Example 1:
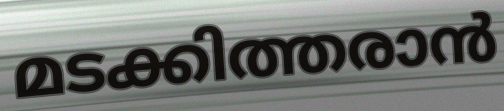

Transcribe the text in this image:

മടക്കിത്തരാൻ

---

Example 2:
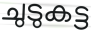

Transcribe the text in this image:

ചുടുകട്ട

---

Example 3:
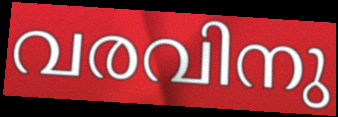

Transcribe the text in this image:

വരവിനു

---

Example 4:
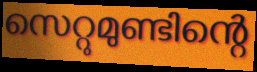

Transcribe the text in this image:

സെറ്റുമുണ്ടിന്റെ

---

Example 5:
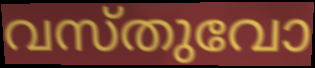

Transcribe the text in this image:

വസ്തുവോ